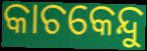
କାଚକେନ୍ଦୁ